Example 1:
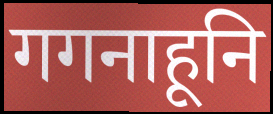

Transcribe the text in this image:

गगनाहूनि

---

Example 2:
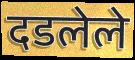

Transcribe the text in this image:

दडलेले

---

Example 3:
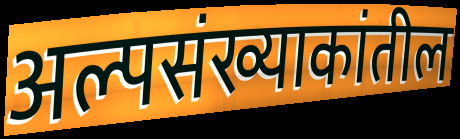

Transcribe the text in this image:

अल्पसंख्याकांतील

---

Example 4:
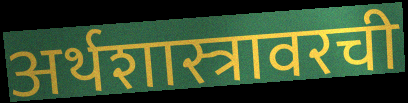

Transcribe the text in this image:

अर्थशास्त्रावरची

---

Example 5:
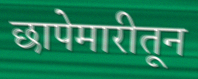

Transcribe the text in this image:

छापेमारीतून